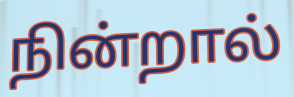
நின்றால்